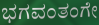
ಭಗವಂತಂಗೇ